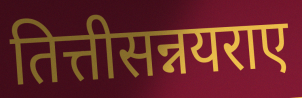
तित्तीसन्नयराए